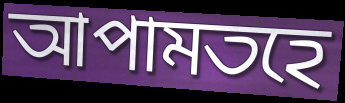
আপামতহে